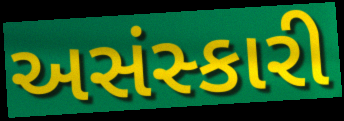
અસંસ્કારી